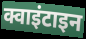
क्वाइंटाइन